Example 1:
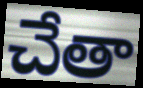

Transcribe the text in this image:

చేతా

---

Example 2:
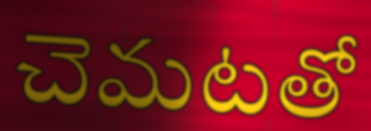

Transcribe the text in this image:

చెమటతో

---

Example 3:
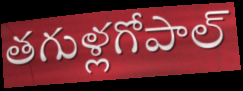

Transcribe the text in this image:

తగుళ్లగోపాల్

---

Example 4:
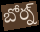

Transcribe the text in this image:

బోర్న్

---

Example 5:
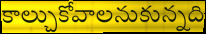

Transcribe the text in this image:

కాల్చుకోవాలనుకున్నది